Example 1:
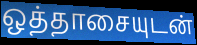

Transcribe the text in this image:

ஒத்தாசையுடன்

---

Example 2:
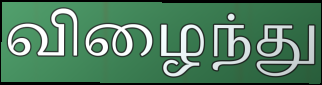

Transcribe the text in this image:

விழைந்து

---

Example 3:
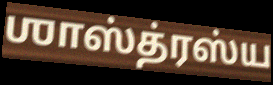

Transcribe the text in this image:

ஶாஸ்த்ரஸ்ய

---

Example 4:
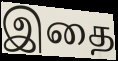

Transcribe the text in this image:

இதை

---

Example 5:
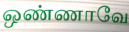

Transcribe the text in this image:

ஒண்ணாவே